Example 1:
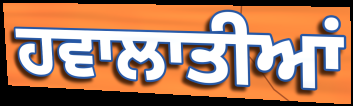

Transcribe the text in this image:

ਹਵਾਲਾਤੀਆਂ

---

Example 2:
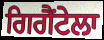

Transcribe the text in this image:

ਗਿਗੈਂਟੇਲਾ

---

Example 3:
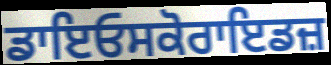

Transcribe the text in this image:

ਡਾਇਓਸਕੋਰਾਇਡਜ਼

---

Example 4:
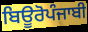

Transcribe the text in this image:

ਬਿਊਰੋਪੰਜਾਬੀ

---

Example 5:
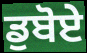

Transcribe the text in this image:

ਡੁਬੋਏ